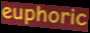
euphoric